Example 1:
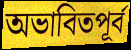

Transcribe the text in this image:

অভাবিতপূর্ব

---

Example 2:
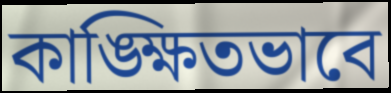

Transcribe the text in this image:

কাঙ্ক্ষিতভাবে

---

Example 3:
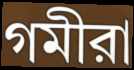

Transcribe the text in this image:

গমীরা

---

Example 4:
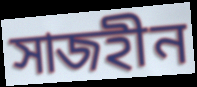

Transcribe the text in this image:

সাজহীন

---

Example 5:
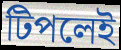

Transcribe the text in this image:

টিপলেই